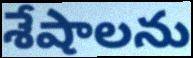
శేషాలను